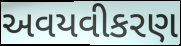
અવયવીકરણ